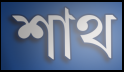
শাথ